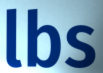
lbs